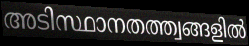
അടിസ്ഥാനതത്ത്വങ്ങളിൽ